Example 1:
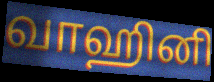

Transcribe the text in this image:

வாஹினி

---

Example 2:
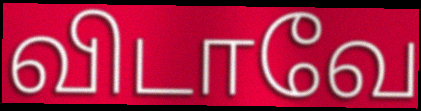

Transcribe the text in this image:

விடாவே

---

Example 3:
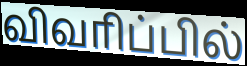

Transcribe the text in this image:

விவரிப்பில்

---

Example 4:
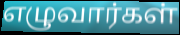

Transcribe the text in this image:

எழுவார்கள்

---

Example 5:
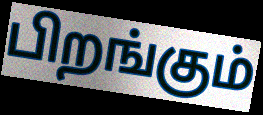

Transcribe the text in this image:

பிறங்கும்